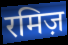
रमिज़